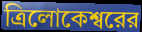
ত্রিলোকেশ্বরের